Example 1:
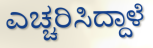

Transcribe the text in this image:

ಎಚ್ಚರಿಸಿದ್ದಾಳೆ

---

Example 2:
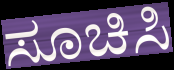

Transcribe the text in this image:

ಸೂಚಿಸಿ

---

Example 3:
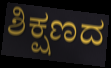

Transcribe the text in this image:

ಶಿಕ್ಷಣದ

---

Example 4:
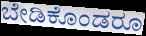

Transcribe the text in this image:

ಬೇಡಿಕೊಂಡರೂ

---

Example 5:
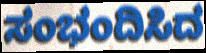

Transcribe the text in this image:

ಸಂಭಂದಿಸಿದ